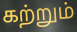
கற்றும்